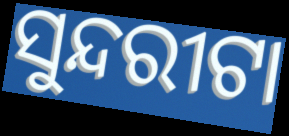
ସୁନ୍ଦରୀଟା